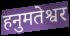
हनुमतेश्वर